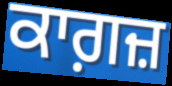
ਕਾਗ਼ਜ਼